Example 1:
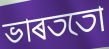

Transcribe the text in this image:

ভাৰততো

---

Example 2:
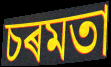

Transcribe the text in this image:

চৰমতা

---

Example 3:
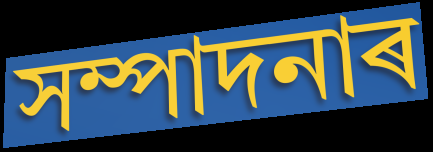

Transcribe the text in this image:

সম্পাদনাৰ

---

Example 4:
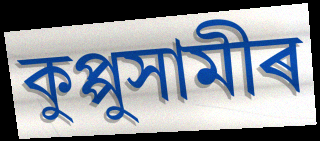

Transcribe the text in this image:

কুপ্পুসামীৰ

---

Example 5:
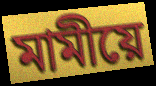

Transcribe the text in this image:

মামীয়ে